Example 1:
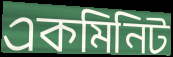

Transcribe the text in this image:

একমিনিট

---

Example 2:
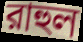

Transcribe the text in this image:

রাহুল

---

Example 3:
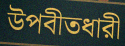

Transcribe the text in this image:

উপবীতধারী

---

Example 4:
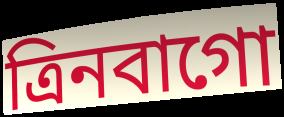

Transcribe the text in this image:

ত্রিনবাগো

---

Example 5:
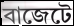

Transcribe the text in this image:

বাজেটে